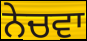
ਨੇਚਵਾ